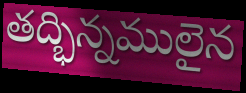
తద్భిన్నములైన